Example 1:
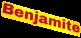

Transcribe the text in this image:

Benjamite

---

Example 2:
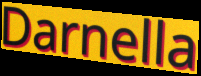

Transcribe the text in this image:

Darnella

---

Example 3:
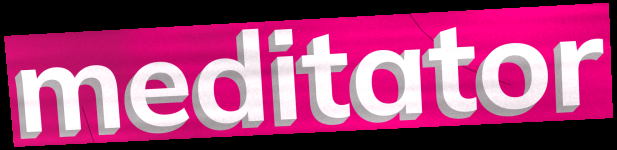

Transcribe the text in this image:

meditator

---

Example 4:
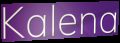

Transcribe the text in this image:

Kalena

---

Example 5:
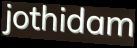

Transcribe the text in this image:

jothidam